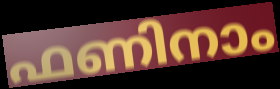
ഫണിനാം